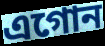
এগোন